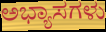
ಅಭ್ಯಾಸಗಳು